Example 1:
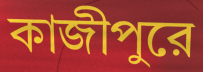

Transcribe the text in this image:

কাজীপুরে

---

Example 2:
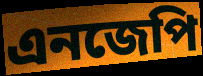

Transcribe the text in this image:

এনজেপি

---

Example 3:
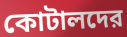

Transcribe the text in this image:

কোটালদের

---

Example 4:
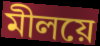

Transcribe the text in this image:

মীলয়ে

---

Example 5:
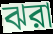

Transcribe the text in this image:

ঝরা